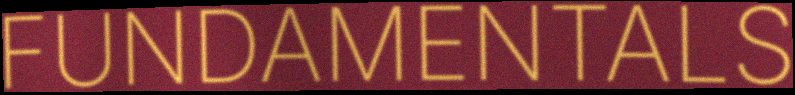
FUNDAMENTALS